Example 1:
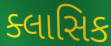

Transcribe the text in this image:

ક્લાસિક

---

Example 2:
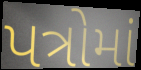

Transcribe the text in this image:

પત્રોમાં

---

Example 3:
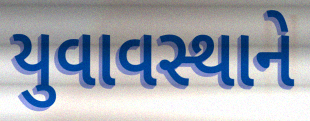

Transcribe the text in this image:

યુવાવસ્થાને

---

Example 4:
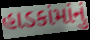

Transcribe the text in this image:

હાડકાંમાંનું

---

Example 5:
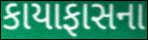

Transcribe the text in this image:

કાયાફાસના